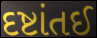
દષ્ટાંતઈ